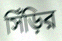
সিঁড়ির